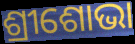
ଶ୍ରୀଶୋଭା